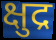
क्षुद्र